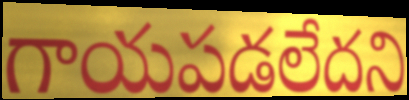
గాయపడలేదని